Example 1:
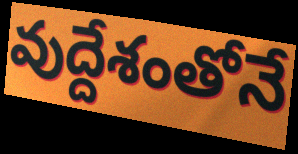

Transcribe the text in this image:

వుద్దేశంతోనే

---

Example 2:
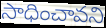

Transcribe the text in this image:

సాధించావని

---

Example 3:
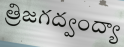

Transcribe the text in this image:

త్రిజగద్వంద్యా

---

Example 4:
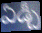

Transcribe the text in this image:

ఏడ్చీ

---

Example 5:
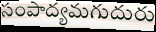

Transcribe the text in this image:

సంపాద్యమగుదురు